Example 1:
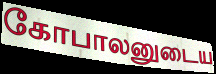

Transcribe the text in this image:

கோபாலனுடைய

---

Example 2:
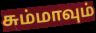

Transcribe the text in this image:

சும்மாவும்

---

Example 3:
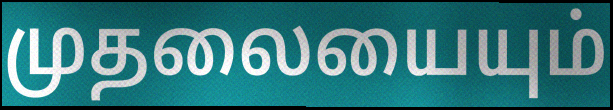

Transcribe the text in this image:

முதலையையும்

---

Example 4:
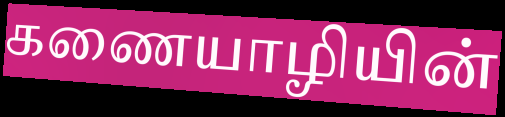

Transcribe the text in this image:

கணையாழியின்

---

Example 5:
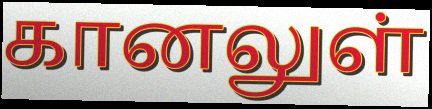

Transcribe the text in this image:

கானலுள்